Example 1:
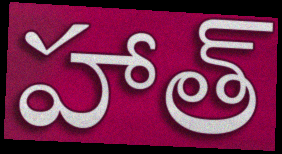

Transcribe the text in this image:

హాత్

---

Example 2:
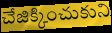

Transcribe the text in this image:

చేజిక్కించుకుని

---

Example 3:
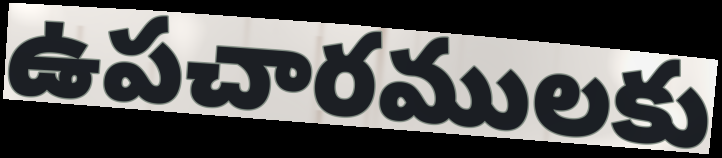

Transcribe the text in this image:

ఉపచారములకు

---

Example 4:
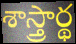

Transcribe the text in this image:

శాస్త్రార్థ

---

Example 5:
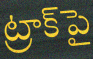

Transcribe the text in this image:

ట్రాక్‌పై